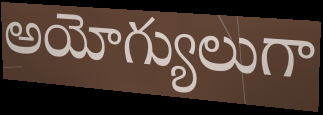
అయోగ్యులుగా